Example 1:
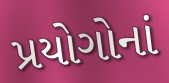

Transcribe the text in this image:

પ્રયોગોનાં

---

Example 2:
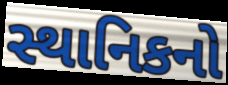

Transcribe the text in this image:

સ્થાનિકનો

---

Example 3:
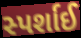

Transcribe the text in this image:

સ્પર્શાઈ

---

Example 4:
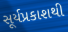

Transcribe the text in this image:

સૂર્યપ્રકાશથી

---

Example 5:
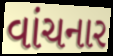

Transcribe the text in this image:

વાંચનાર